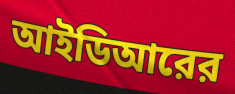
আইডিআরের